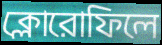
ক্লোরোফিলে